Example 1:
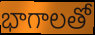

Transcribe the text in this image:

భాగాలతో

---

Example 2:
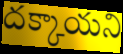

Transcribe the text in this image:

దక్కాయని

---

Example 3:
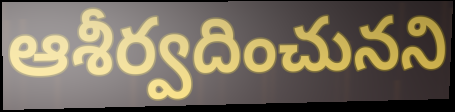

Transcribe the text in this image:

ఆశీర్వదించునని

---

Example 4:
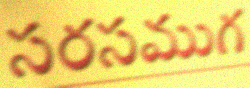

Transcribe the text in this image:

సరసముగ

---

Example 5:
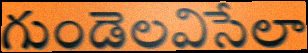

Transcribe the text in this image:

గుండెలవిసేలా